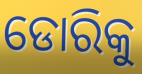
ଡୋରିକୁ